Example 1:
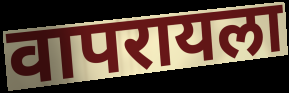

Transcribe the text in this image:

वापरायला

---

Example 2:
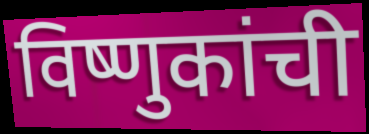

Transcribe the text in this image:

विष्णुकांची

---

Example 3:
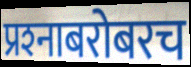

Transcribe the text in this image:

प्रश्‍नाबरोबरच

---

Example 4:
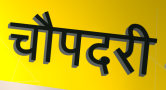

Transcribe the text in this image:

चौपदरी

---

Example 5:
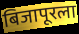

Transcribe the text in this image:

बिजापूरला